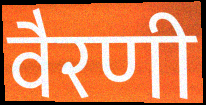
वैरणी